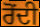
ਰੋਂਦੀ